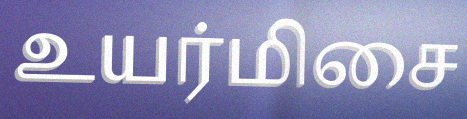
உயர்மிசை